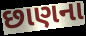
છાણના